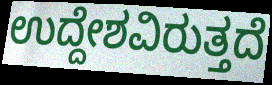
ಉದ್ದೇಶವಿರುತ್ತದೆ